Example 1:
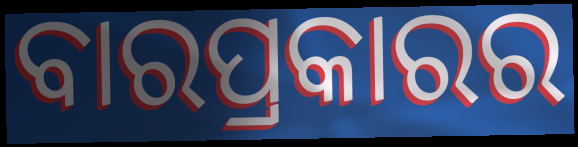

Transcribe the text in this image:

ବାରପ୍ରକାରର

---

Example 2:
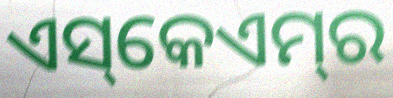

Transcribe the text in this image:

ଏସ୍‌କେଏମ୍‌ର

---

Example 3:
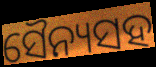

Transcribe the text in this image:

ସୈନ୍ୟସହ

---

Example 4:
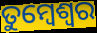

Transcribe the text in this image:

ତୁମ୍ବେଶ୍ଵର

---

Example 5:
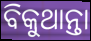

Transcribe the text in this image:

ବିକୁଥାନ୍ତା